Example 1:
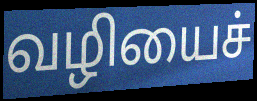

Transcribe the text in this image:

வழியைச்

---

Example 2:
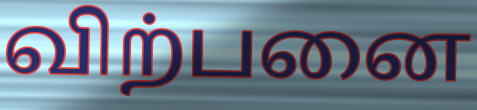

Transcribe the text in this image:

விற்பனை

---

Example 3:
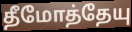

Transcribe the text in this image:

தீமோத்தேயு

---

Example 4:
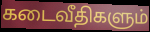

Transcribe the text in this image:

கடைவீதிகளும்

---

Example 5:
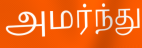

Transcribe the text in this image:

அமர்ந்து